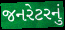
જનરેટરનું